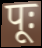
पूः